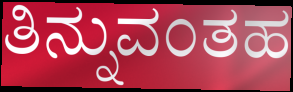
ತಿನ್ನುವಂತಹ